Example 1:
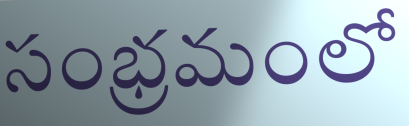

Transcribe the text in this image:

సంభ్రమంలో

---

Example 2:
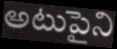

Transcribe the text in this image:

అటుపైని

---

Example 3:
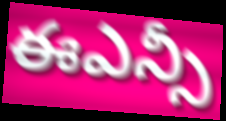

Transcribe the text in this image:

ఈఎన్సీ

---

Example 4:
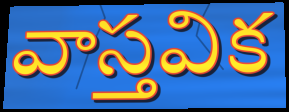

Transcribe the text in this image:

వాస్తవిక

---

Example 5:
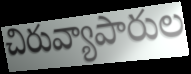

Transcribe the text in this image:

చిరువ్యాపారుల